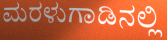
ಮರಳುಗಾಡಿನಲ್ಲಿ